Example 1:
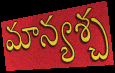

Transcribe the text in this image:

మాన్యశ్చ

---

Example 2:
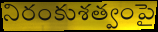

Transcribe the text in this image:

నిరంకుశత్వంపై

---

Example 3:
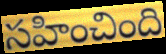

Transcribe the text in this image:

సహించింది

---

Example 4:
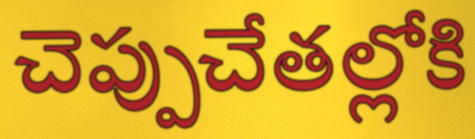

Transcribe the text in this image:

చెప్పుచేతల్లోకి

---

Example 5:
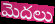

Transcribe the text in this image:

మెదలు